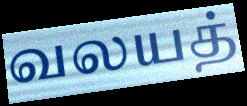
வலயத்